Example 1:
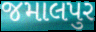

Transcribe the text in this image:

જમાલપુર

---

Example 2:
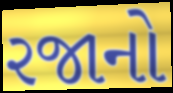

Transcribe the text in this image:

રજાનો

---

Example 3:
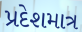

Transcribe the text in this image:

પ્રદેશમાત્ર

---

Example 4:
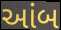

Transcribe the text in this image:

આંબ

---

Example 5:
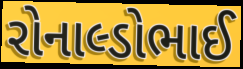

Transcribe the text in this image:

રોનાલ્ડોભાઈ